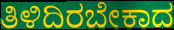
ತಿಳಿದಿರಬೇಕಾದ